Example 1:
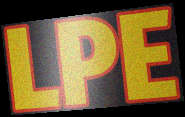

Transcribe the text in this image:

LPE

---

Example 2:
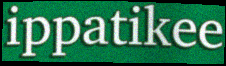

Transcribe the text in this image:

ippatikee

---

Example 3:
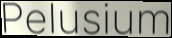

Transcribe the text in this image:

Pelusium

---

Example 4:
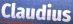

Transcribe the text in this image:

Claudius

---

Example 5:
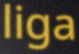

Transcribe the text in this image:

liga